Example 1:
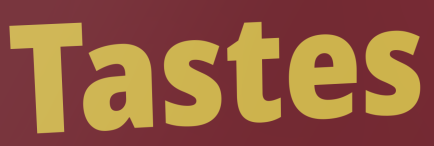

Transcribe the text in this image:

Tastes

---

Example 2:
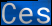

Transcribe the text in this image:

Ces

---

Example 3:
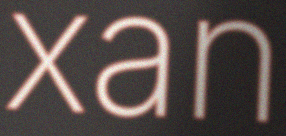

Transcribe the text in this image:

xan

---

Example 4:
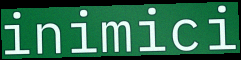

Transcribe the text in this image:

inimici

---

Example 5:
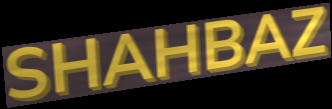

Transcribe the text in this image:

SHAHBAZ